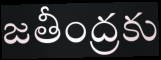
జతీంద్రకు